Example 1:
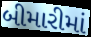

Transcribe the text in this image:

બીમારીમાં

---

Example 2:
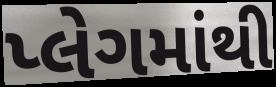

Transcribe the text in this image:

પ્લેગમાંથી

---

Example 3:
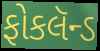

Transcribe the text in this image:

ફોકલૅન્ડ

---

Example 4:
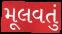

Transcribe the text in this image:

મૂલવતું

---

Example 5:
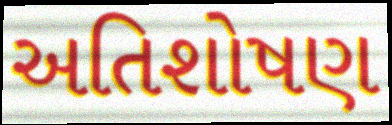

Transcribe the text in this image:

અતિશોષણ